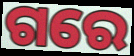
ଗରେ